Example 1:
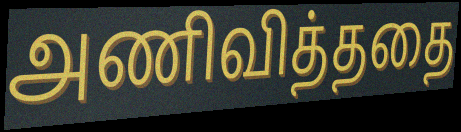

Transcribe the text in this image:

அணிவித்ததை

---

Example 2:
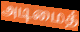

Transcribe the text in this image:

அடிமைத்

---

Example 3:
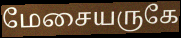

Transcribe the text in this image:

மேசையருகே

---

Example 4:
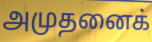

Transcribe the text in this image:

அமுதனைக்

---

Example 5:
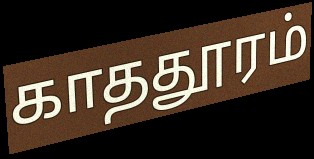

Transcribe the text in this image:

காததூரம்